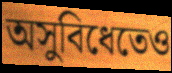
অসুবিধেতেও